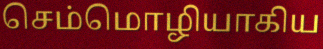
செம்மொழியாகிய